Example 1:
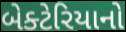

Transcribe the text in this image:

બેક્ટેરિયાનો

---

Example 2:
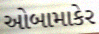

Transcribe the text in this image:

ઓબામાકેર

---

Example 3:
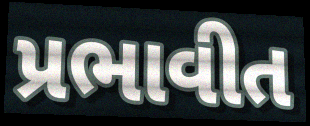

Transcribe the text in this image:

પ્રભાવીત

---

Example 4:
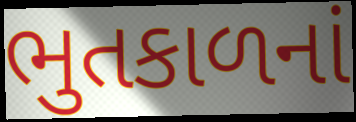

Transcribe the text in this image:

ભુતકાળનાં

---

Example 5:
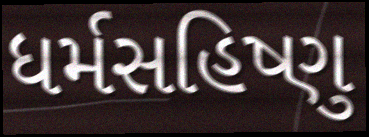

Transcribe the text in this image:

ધર્મસહિષ્ણુ